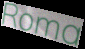
Roma